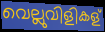
വെല്ലുവിളികള്